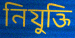
নিযুক্তি